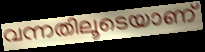
വന്നതിലൂടെയാണ്